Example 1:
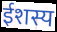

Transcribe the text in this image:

ईशस्य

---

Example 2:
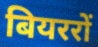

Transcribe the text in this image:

बियररों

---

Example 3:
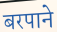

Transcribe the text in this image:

बरपाने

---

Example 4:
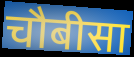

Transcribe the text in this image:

चौबीसा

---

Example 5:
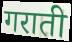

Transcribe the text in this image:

गराती